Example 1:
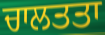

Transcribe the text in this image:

ਚਾਲਤਤਾ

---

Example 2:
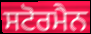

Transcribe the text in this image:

ਸਟੋਰਮੈਨ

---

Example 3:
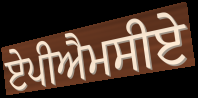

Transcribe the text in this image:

ਏਪੀਐਮਸੀਏ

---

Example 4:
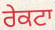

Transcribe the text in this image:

ਰੇਕਟਾ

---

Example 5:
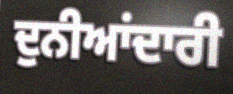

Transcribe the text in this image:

ਦੁਨੀਆਂਦਾਰੀ